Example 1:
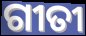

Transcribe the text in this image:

ଗୀତୀ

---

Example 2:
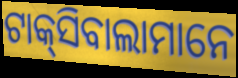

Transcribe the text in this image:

ଟାକ୍‌ସିବାଲାମାନେ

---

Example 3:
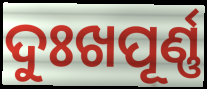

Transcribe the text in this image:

ଦୁଃଖପୂର୍ଣ୍ଣ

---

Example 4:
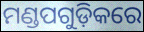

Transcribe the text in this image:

ମଣ୍ଡପଗୁଡ଼ିକରେ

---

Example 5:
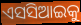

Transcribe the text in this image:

ଏସସିଆଇକୁ